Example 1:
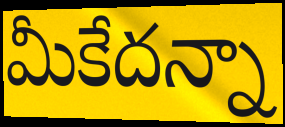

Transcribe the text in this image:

మీకేదన్నా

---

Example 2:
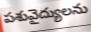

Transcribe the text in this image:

పశువైద్యులను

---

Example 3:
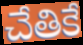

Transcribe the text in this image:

చేతికే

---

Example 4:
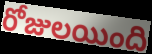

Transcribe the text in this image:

రోజులయింది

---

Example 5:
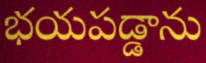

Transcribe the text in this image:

భయపడ్డాను